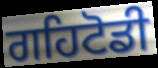
ਗਹਿਟੋਡੀ